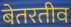
बेतरतीव